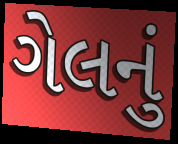
ગેલનું